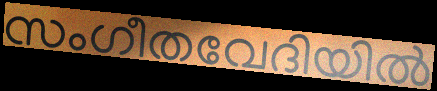
സംഗീതവേദിയിൽ